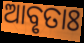
ଆବୃତାଃ